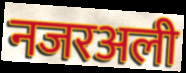
नजरअली